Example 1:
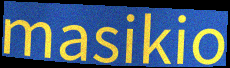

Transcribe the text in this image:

masikio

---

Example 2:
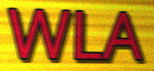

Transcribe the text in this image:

WLA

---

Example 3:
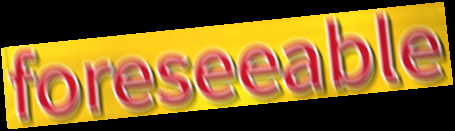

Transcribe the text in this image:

foreseeable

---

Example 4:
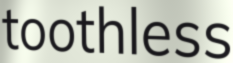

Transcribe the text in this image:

toothless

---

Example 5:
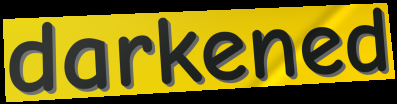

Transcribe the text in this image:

darkened